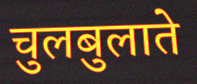
चुलबुलाते